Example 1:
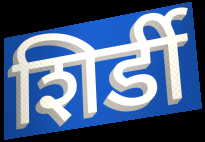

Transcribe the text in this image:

शिर्डी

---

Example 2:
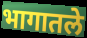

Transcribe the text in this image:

भागातले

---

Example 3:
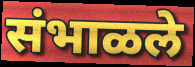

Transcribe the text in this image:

संभाळले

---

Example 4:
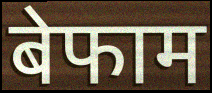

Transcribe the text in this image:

बेफाम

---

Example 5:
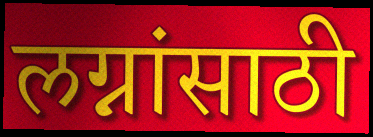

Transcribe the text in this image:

लग्नांसाठी